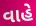
વાહે